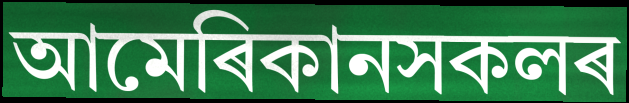
আমেৰিকানসকলৰ